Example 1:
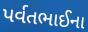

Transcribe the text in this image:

પર્વતભાઈના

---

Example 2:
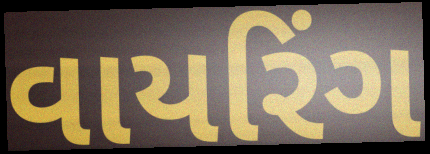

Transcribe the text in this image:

વાયરિંગ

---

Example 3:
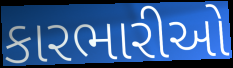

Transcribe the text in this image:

કારભારીઓ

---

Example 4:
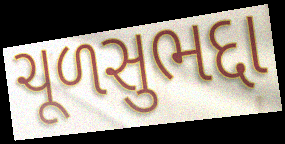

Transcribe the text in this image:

ચૂળસુભદ્દા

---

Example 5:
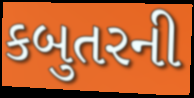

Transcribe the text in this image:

કબુતરની